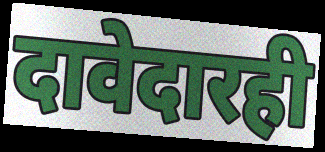
दावेदारही